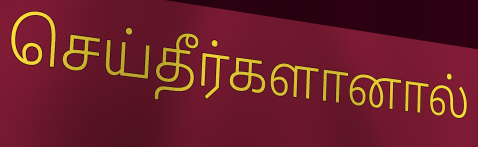
செய்தீர்களானால்